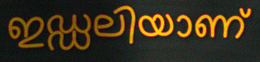
ഇഡ്ഡലിയാണ്